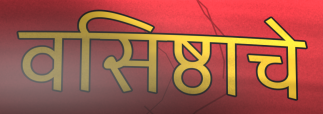
वसिष्ठाचे